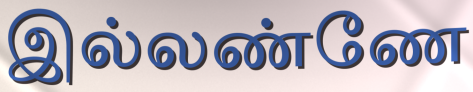
இல்லண்ணே